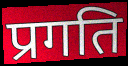
प्रगति